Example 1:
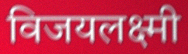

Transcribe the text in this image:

विजयलक्ष्मी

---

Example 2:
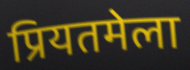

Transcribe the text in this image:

प्रियतमेला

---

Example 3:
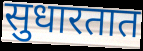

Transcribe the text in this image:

सुधारतात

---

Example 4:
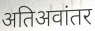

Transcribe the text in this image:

अतिअवांतर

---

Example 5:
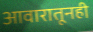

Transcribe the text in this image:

आवारातूनही